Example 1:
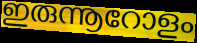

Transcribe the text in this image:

ഇരുന്നൂറോളം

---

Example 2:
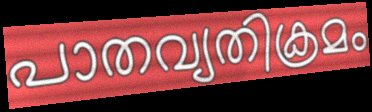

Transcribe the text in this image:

പാതവ്യതിക്രമം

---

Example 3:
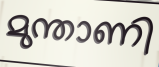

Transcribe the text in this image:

മുന്താണി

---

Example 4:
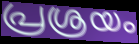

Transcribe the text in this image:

പ്രശ്രയം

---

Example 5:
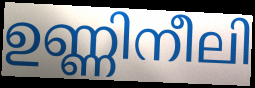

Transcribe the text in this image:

ഉണ്ണിനീലി